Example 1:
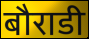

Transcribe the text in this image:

बौराडी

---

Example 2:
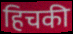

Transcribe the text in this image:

हिचकी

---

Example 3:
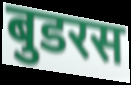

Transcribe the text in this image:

बुडरस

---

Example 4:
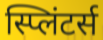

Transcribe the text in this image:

स्प्लिंटर्स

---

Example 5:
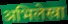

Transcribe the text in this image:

अभिलेखा